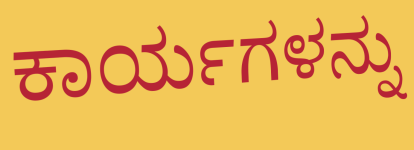
ಕಾರ್ಯಗಳನ್ನು